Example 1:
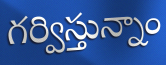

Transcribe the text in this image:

గర్విస్తున్నాం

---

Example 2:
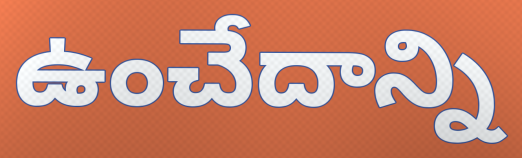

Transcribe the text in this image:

ఉంచేదాన్ని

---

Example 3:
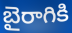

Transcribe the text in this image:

బైరాగికి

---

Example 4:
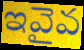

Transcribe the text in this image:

ఇవైవ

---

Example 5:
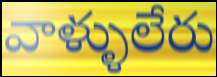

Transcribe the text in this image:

వాళ్ళులేరు